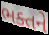
ભક્તને